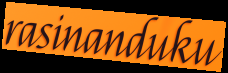
rasinanduku